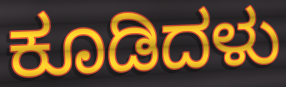
ಕೂಡಿದಳು